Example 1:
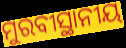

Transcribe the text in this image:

ମୁରବୀସ୍ଥାନୀୟ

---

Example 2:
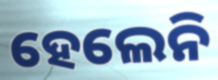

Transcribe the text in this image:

ହେଲେନି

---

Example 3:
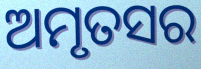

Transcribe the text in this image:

ଅମୃତସର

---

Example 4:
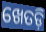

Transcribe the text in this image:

ଖେତଡ଼ି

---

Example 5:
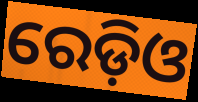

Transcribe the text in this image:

ରେଡ଼ିଓ